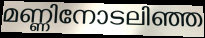
മണ്ണിനോടലിഞ്ഞ